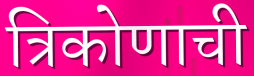
त्रिकोणाची